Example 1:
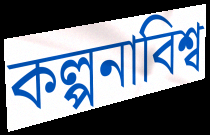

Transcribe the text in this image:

কল্পনাবিশ্ব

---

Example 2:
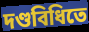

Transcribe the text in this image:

দণ্ডবিধিতে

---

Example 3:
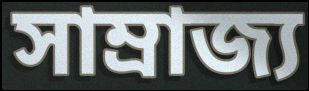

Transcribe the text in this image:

সাম্রাজ্য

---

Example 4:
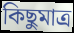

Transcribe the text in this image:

কিছুমাত্র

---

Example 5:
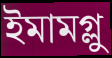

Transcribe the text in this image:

ইমামগ্লু